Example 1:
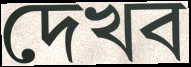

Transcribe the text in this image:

দেখব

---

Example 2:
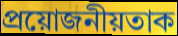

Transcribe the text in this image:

প্ৰয়োজনীয়তাক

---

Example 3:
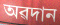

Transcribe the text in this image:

অৱদান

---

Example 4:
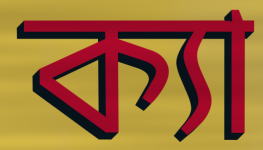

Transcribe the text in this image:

ক্যা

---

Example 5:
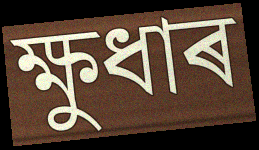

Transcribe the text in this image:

ক্ষুধাৰ